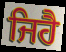
ਜਿਹੈ